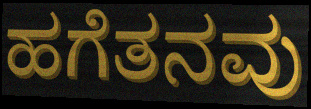
ಹಗೆತನವು